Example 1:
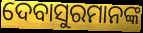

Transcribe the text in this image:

ଦେବାସୁରମାନଙ୍କ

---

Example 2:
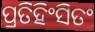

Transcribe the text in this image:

ପ୍ରତିହିଂସିତଂ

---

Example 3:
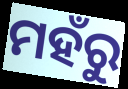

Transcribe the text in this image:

ମହଁରୁ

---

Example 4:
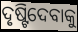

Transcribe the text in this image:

ଦୃଷ୍ଟିଦେବାକୁ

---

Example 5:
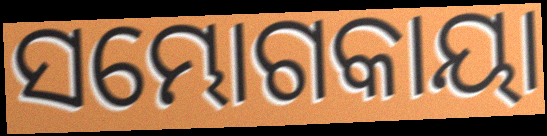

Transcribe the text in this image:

ସମ୍ଭୋଗକାୟା